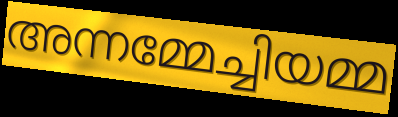
അന്നമ്മേച്ചിയമ്മ